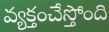
వ్యక్తంచేస్తోంది